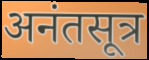
अनंतसूत्र